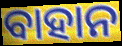
ବାହାନ